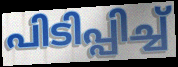
പിടിപ്പിച്ച്